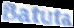
Batuta